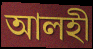
আলহী